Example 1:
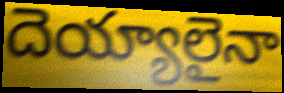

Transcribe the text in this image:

దెయ్యాలైనా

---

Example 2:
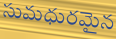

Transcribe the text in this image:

సుమధురమైన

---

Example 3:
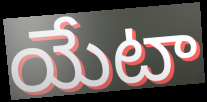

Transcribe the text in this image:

యేటా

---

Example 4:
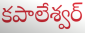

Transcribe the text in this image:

కపాలేశ్వర్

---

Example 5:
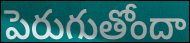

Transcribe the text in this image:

పెరుగుతోందా